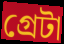
গ্রেটা